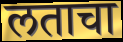
लताचा